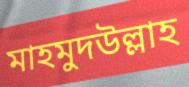
মাহমুদউল্লাহ